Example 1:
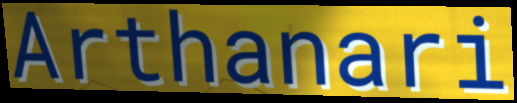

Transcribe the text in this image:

Arthanari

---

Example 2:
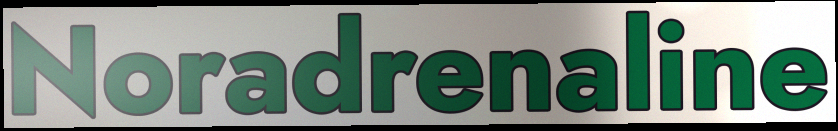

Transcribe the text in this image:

Noradrenaline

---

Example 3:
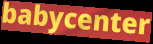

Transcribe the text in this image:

babycenter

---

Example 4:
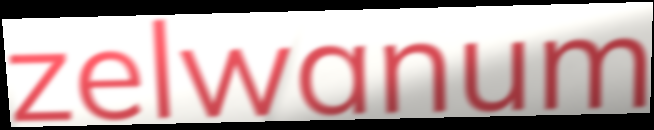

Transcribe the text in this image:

zelwanum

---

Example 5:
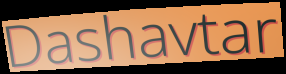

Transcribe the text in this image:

Dashavtar